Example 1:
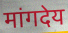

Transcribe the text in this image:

मांगदेय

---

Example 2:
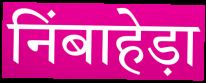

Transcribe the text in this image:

निंबाहेड़ा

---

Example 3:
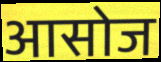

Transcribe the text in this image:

आसोज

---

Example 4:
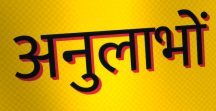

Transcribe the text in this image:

अनुलाभों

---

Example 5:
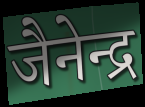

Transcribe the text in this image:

जैनेन्द्र